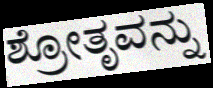
ಶ್ರೋತೃವನ್ನು